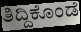
ತಿದ್ದಿಕೊಂಡೆ